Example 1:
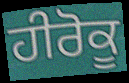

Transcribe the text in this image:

ਹੀਰੋਕੂ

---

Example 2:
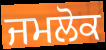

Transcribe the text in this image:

ਜਮਲੋਕ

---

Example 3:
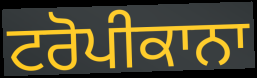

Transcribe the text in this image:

ਟਰੋਪੀਕਾਨਾ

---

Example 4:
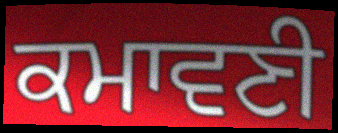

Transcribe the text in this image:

ਕਮਾਵਣੀ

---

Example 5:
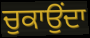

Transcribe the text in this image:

ਚੁਕਾਉਂਦਾ